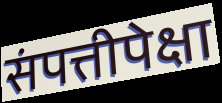
संपत्तीपेक्षा